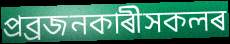
প্ৰব্ৰজনকাৰীসকলৰ